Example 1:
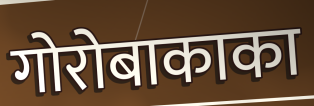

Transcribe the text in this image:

गोरोबाकाका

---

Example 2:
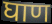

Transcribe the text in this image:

घाण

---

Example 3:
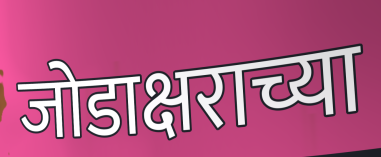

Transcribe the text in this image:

जोडाक्षराच्या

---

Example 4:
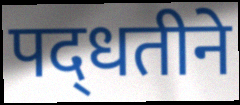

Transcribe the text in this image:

पद्‍धतीने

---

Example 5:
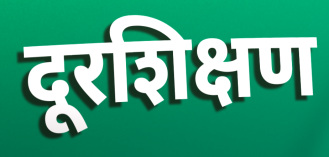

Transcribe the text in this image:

दूरशिक्षण